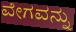
ವೇಗವನ್ನು